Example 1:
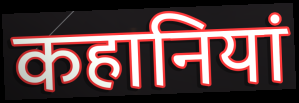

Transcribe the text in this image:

कहानियां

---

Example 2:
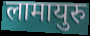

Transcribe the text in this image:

लामायुरु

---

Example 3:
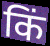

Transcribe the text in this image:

किं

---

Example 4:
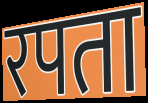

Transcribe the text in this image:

रपता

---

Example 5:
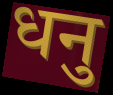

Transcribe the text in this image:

धनु